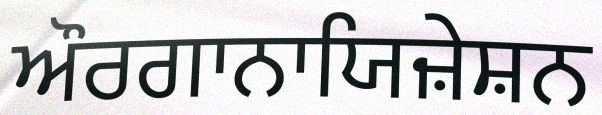
ਔਰਗਾਨਾਯਿਜ਼ੇਸ਼ਨ